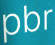
pbr